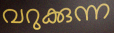
വറുക്കുന്ന